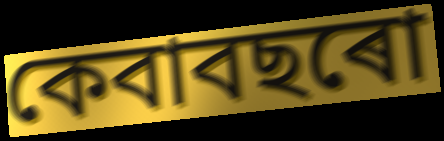
কেবাবছৰো